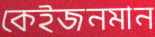
কেইজনমান